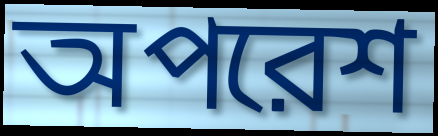
অপরেশ